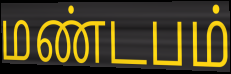
மண்டபம்